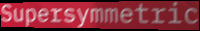
Supersymmetric